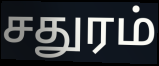
சதுரம்